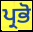
ਪ੍ਰਭੋ